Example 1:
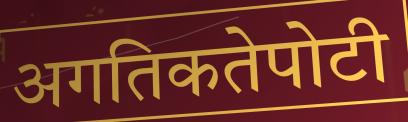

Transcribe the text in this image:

अगतिकतेपोटी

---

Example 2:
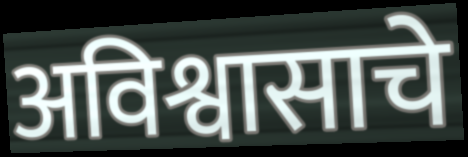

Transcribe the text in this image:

अविश्वासाचे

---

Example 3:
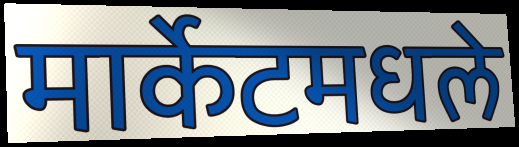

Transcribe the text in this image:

मार्केटमधले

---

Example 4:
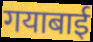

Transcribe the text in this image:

गयाबाई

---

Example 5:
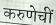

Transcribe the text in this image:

करुणेचीं